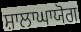
ਸ਼ਾਲਾਘਾਯੋਗ